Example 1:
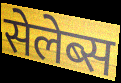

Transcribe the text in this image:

सेलेब्‍स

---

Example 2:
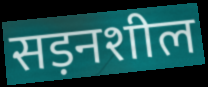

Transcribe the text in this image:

सड़नशील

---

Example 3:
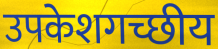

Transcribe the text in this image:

उपकेशगच्छीय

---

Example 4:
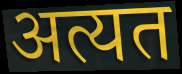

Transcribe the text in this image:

अत्यत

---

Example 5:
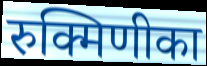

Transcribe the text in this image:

रुक्मिणीका